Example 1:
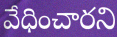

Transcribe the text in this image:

వేధించారని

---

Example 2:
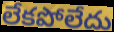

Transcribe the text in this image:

లేకపోలేదు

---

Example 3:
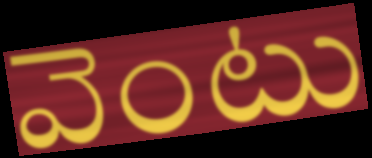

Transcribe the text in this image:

వెంటు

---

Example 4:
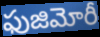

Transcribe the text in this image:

ఫుజిమోరీ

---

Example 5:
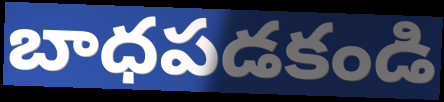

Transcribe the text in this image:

బాధపడకండి